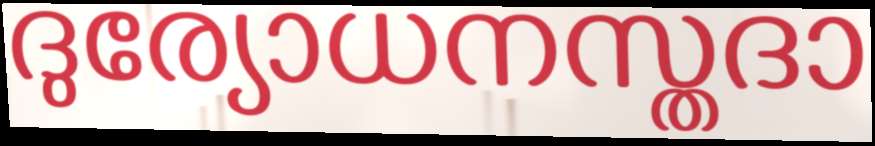
ദുര്യോധനസ്തദാ